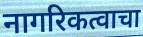
नागरिकत्वाचा